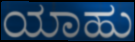
ಯಾಹು